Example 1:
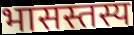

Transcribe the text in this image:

भासस्तस्य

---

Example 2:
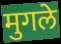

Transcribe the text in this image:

मुगले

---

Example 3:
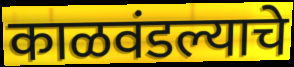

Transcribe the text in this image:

काळवंडल्याचे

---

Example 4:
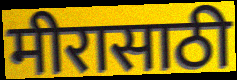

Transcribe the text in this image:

मीरासाठी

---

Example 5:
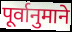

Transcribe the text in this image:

पूर्वानुमाने